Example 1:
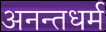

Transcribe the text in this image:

अनन्तधर्म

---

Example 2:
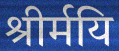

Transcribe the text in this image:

श्रीर्मयि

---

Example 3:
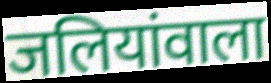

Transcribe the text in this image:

जलियांवाला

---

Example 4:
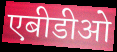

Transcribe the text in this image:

एबीडीओ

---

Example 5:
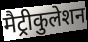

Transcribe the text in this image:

मैट्रीकुलेशन